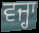
ਵਜ੍ਹਾ